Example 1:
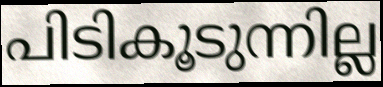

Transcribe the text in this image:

പിടികൂടുന്നില്ല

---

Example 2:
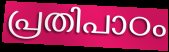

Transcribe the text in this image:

പ്രതിപാഠം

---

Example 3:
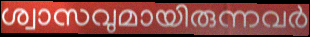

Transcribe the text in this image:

ശ്വാസവുമായിരുന്നവർ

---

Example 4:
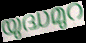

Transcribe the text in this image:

യുദ്ധമുറ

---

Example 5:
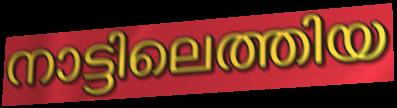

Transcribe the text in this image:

നാട്ടിലെത്തിയ